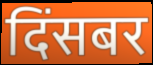
दिंसबर